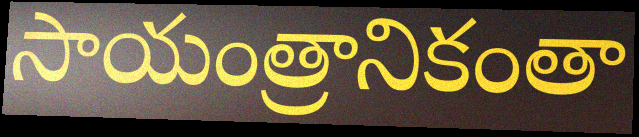
సాయంత్రానికంతా